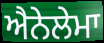
ਐਨੇਲੇਮਾ